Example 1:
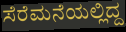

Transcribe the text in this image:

ಸೆರೆಮನೆಯಲ್ಲಿದ್ದ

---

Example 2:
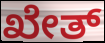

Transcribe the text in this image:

ಖೇತ್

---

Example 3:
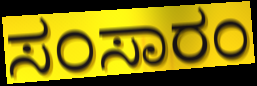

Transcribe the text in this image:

ಸಂಸಾರಂ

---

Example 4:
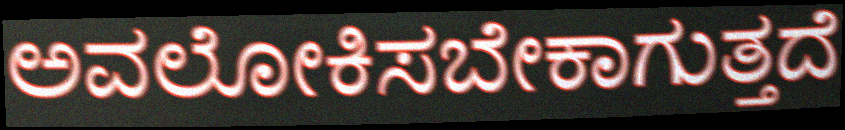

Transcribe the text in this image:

ಅವಲೋಕಿಸಬೇಕಾಗುತ್ತದೆ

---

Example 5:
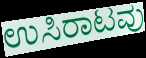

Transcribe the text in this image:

ಉಸಿರಾಟವು